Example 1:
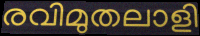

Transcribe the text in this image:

രവിമുതലാളി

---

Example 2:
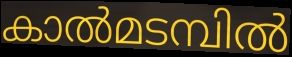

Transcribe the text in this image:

കാൽമടമ്പിൽ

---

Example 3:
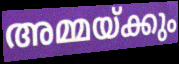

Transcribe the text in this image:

അമ്മയ്ക്കും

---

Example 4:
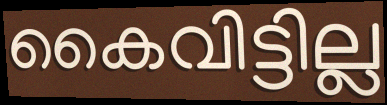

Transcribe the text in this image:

കൈവിട്ടില്ല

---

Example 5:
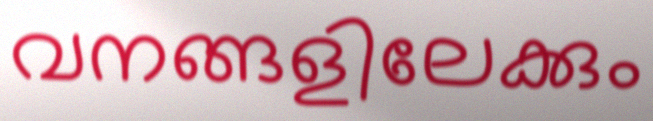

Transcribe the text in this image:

വനങ്ങളിലേക്കും